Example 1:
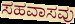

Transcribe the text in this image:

ಸಹವಾಸವು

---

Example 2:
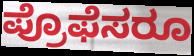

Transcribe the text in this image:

ಪ್ರೊಫೆಸರೂ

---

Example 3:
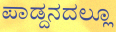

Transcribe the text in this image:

ಪಾಡ್ದನದಲ್ಲೂ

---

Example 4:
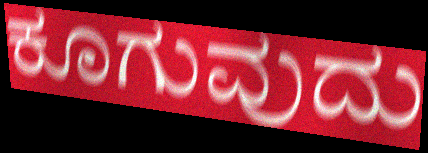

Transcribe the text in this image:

ಕೂಗುವುದು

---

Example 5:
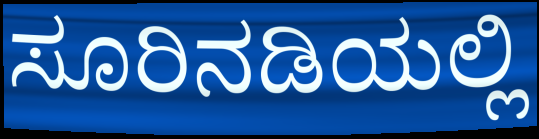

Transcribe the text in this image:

ಸೂರಿನಡಿಯಲ್ಲಿ